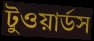
টুওয়ার্ডস